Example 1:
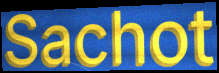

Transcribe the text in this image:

Sachot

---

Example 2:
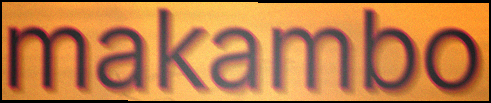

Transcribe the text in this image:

makambo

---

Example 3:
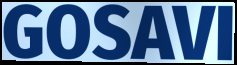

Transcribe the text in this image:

GOSAVI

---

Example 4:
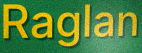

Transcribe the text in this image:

Raglan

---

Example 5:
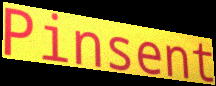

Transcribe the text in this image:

Pinsent